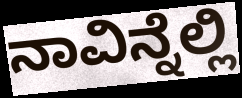
ನಾವಿನ್ನೆಲ್ಲಿ